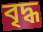
বৃদ্ধ